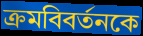
ক্রমবিবর্তনকে